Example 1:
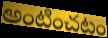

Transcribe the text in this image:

అంటించటం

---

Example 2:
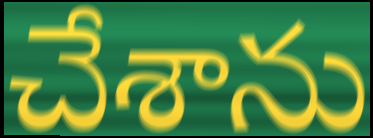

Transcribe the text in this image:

చేశాను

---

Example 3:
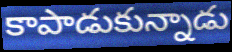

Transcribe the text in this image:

కాపాడుకున్నాడు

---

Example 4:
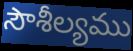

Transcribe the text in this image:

సౌశీల్యము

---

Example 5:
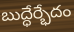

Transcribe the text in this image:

బుద్ధేర్భేదం